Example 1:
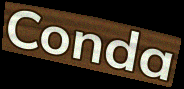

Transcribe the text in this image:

Conda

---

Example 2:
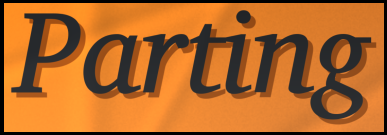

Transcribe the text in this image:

Parting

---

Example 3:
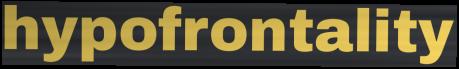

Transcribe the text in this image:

hypofrontality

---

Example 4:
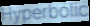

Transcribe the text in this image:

Hyperbolic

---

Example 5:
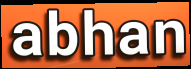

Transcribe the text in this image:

abhan